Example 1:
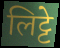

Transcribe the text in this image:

लिट्टे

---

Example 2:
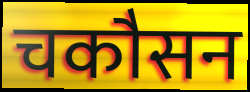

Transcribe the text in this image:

चकौसन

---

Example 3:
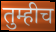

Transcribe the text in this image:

तुम्हीच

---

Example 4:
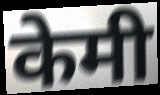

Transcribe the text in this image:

केमी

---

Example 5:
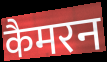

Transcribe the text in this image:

कैमरन